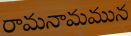
రామనామమున